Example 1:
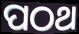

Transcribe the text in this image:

ପଠଥ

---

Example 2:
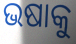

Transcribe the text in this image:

ଭଷାକୁ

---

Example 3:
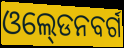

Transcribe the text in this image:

ଓଲ୍‍ଡେନବର୍ଗ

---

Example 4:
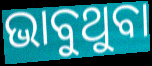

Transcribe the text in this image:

ଭାବୁଥୁବା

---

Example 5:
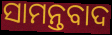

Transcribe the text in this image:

ସାମନ୍ତବାଦ